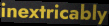
inextricably